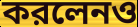
করলেনও